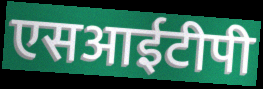
एसआईटीपी